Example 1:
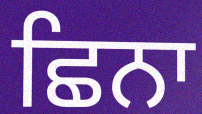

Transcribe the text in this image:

ਛਿਨਾ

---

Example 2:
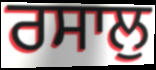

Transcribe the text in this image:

ਰਸਾਲੁ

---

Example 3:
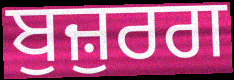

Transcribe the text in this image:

ਬੁਜ਼ੁਰਗ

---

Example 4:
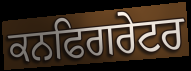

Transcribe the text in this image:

ਕਨਫਿਗਰੇਟਰ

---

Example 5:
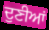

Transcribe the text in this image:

ਦੁਣੀਆਂ